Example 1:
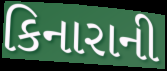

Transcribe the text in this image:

કિનારાની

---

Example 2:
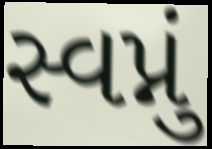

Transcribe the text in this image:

સ્વપ્નું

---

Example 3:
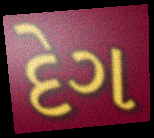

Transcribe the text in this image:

દેગ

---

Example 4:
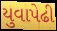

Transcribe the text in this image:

યુવાપેઢી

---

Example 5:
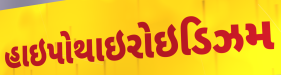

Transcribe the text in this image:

હાઇપોથાઇરોઇડિઝમ